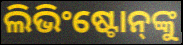
ଲିଭିଂଷ୍ଟୋନ୍‌ଙ୍କୁ